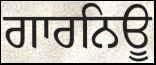
ਗਾਰਨਿਊ